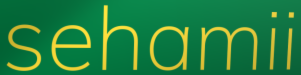
sehamii